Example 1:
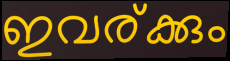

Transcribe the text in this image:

ഇവര്ക്കും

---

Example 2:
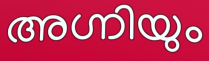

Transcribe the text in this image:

അഗ്നിയും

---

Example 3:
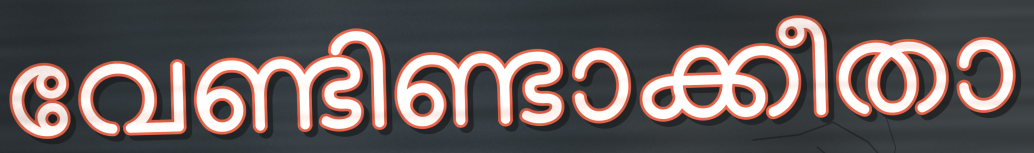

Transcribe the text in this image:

വേണ്ടിണ്ടാക്കീതാ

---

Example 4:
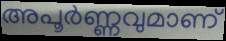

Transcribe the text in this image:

അപൂർണ്ണവുമാണ്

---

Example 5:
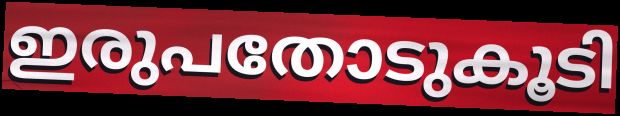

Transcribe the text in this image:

ഇരുപതോടുകൂടി